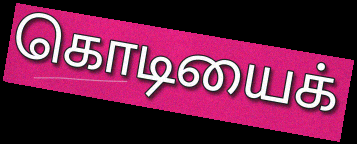
கொடியைக்